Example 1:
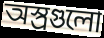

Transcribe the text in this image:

অস্ত্রগুলো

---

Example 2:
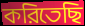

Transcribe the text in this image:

করিতেছি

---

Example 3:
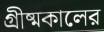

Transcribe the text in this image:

গ্রীষ্মকালের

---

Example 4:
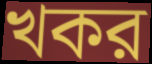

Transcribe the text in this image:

খকর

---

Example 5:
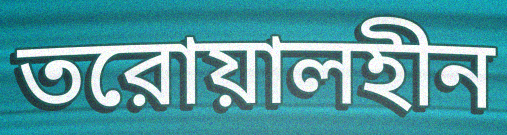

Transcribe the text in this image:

তরোয়ালহীন